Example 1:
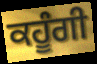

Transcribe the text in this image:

ਕਹੂੰਗੀ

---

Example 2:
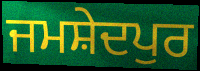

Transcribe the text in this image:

ਜਮਸ਼ੇਦਪੁਰ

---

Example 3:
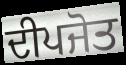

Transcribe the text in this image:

ਦੀਪਜੋਤ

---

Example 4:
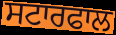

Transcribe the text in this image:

ਸਟਾਰਫਾਲ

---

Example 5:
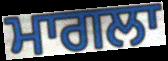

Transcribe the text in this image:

ਮਾਗਲਾ